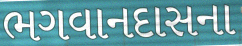
ભગવાનદાસના